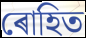
ৰোহিত